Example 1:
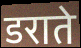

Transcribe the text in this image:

डराते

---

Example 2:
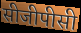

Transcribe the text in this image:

सीजीपीसी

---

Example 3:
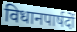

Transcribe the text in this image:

विधानपार्षदों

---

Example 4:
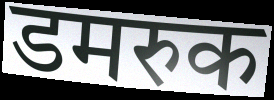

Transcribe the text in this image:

डमरुक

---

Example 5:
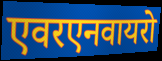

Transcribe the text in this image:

एवरएनवायरो